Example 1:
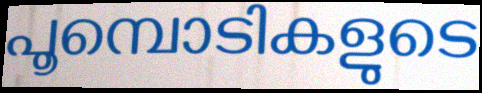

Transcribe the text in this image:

പൂമ്പൊടികളുടെ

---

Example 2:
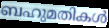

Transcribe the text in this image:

ബഹുമതികൾ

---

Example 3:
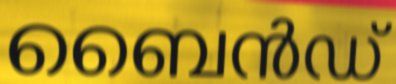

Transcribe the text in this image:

ബൈൻഡ്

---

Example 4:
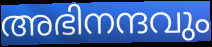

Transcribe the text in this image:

അഭിനന്ദവും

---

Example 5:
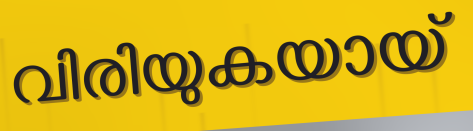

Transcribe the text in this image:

വിരിയുകയായ്